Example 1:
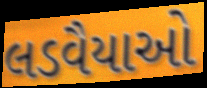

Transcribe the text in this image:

લડવૈયાઓ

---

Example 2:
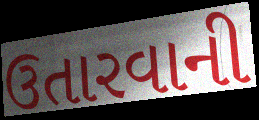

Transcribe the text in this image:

ઉતારવાની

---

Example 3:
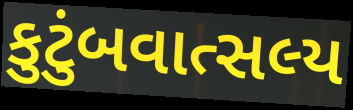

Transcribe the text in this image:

કુટુંબવાત્સલ્ય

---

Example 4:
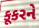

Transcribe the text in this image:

કૂકરને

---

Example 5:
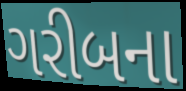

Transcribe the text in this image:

ગરીબના